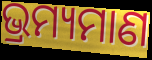
ଭ୍ରମ୍ୟମାଣ